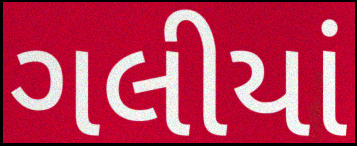
ગલીયાં